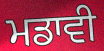
ਮਡਾਵੀ